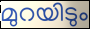
മുറയിടും